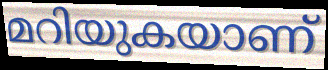
മറിയുകയാണ്